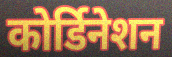
कोर्डिनेशन